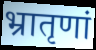
भ्रातृणां